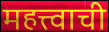
महत्त्वाची